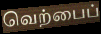
வெற்பைப்